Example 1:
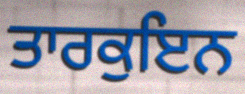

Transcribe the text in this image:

ਤਾਰਕੁਇਨ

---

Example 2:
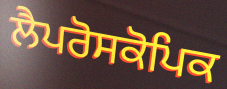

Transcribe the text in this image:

ਲੈਪਰੋਸਕੋਪਿਕ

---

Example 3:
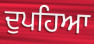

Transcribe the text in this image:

ਦੁਪਹਿਆ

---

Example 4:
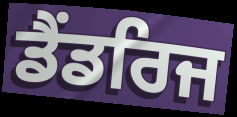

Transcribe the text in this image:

ਡੈਂਡਰਿਜ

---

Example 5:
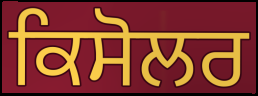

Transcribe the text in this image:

ਕਿਸੋਲਰ